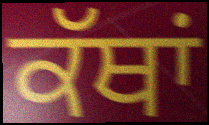
ਕੱਥਾਂ